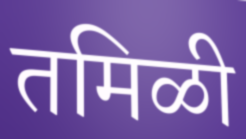
तमिळी